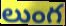
లుంగ